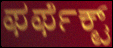
ಫರ್ಫೆಕ್ಟ್